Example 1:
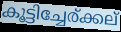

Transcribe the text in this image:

കൂട്ടിച്ചേര്ക്കല്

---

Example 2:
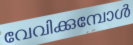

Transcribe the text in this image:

വേവിക്കുമ്പോൾ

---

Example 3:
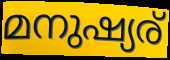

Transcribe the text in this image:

മനുഷ്യര്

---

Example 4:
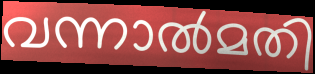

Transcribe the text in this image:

വന്നാൽമതി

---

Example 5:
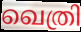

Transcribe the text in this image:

ഖെത്രി